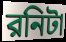
রনিটা